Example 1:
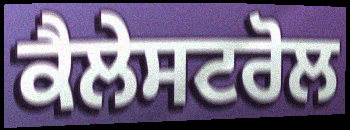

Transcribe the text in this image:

ਕੈਲੇਸਟਰੋਲ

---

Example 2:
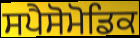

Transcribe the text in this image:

ਸਪੈਸੋਮੋਡਿਕ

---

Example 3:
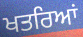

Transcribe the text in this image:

ਖਤਰਿਆਂ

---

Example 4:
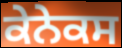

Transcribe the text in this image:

ਕੇਨੇਕਸ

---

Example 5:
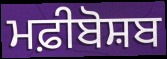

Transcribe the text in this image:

ਮਫ਼ੀਬੋਸ਼ਬ